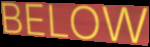
BELOW